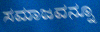
ಸಮಾಜವನ್ನೂ